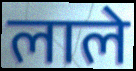
लाले